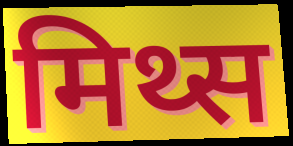
मिथ्स